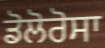
ਡੋਲੋਰੋਸਾ